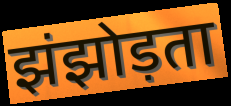
झंझोड़ता